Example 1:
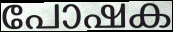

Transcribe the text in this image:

പോഷക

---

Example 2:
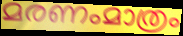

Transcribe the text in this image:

മരണംമാത്രം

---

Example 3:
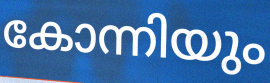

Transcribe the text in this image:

കോന്നിയും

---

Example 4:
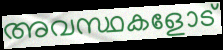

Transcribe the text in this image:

അവസ്ഥകളോട്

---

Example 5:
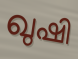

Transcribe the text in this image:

ഖുഷി